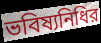
ভবিষ্যনিধির